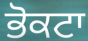
ਭੋਕਟਾ